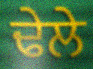
ਢੇਲੇ